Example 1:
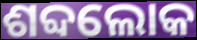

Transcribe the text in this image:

ଶବ୍ଦଲୋକ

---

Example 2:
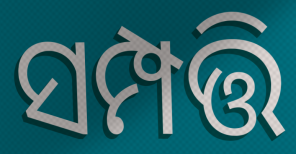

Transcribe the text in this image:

ସମ୍ପତ୍ତି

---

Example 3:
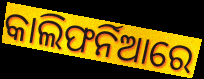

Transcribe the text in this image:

କାଲିଫର୍ନିଆରେ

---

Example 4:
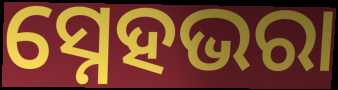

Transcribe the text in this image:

ସ୍ନେହଭରା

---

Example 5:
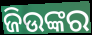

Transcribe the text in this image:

ଜିଉଙ୍କର